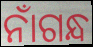
ନାଁଗନ୍ଧ